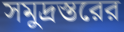
সমুদ্রস্তরের